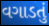
વગાડતું